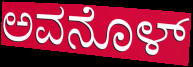
ಅವನೊಳ್